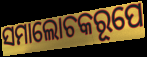
ସମାଲୋଚକରୂପେ